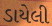
ડાયેલી